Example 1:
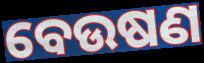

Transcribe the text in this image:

ବେଉଷଣ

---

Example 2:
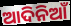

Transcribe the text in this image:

ଆଦିନିଆଁ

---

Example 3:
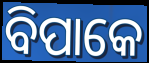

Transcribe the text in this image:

ବିପାକେ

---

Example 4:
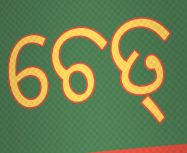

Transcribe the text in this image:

ଚେତ୍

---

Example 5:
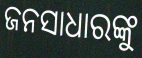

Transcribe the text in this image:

ଜନସାଧାରଙ୍କୁ